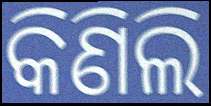
କିଣିଲି